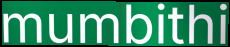
mumbithi